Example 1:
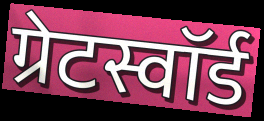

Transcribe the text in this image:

ग्रेटस्वॉर्ड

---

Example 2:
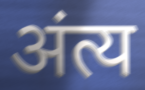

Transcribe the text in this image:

अंत्य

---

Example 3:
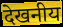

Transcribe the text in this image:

देखनीय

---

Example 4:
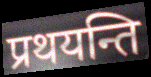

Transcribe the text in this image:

प्रथयन्ति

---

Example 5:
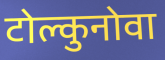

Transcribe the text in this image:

टोल्कुनोवा